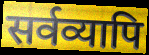
सर्वव्यापि